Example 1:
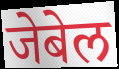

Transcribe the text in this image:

जेबेल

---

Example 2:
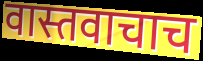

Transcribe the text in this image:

वास्तवाचाच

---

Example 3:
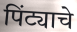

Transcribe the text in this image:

पिंट्याचे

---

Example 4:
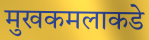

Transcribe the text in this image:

मुखकमलाकडे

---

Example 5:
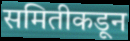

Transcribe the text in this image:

समितीकडून